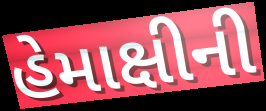
હેમાક્ષીની